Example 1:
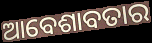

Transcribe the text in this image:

ଆବେଶାବତାର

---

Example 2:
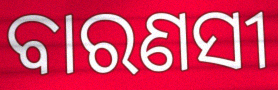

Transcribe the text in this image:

ବାରଣସୀ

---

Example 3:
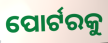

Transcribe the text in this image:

ପୋର୍ଟରକୁ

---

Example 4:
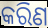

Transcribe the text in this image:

କରିଣ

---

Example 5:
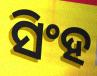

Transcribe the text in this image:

ସିଂହ